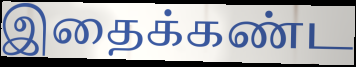
இதைக்கண்ட